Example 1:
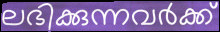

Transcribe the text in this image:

ലഭിക്കുന്നവർക്ക്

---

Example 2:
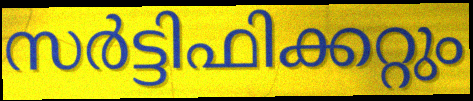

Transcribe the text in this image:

സർട്ടിഫിക്കറ്റും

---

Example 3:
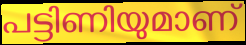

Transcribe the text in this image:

പട്ടിണിയുമാണ്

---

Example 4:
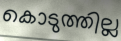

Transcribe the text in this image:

കൊടുത്തില്ല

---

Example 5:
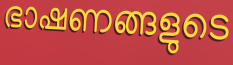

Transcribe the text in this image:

ഭാഷണങ്ങളുടെ